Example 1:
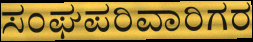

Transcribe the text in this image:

ಸಂಘಪರಿವಾರಿಗರ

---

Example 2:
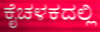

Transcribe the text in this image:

ಕೈಚಳಕದಲ್ಲಿ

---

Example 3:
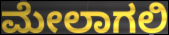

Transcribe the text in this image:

ಮೇಲಾಗಲಿ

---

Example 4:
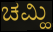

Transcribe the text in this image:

ಚಮ್ಹಿ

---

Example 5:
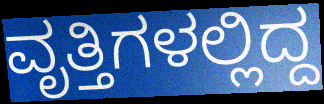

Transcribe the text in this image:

ವೃತ್ತಿಗಳಲ್ಲಿದ್ದ